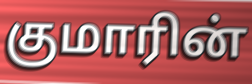
குமாரின்